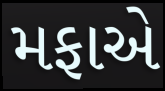
મફાએ